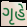
ગૃહે